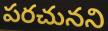
పరచునని